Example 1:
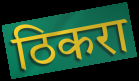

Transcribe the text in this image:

ठिकरा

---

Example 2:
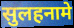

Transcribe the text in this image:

सुलहनामे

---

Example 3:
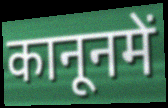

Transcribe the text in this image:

कानूनमें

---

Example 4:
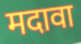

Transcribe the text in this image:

मदावा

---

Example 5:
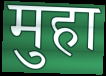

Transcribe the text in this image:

मुहा